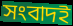
সংবাদই